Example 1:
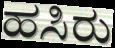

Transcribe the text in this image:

ಹಸಿರು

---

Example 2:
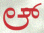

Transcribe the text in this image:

ಆ್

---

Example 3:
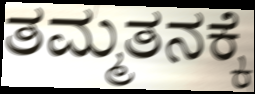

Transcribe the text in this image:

ತಮ್ಮತನಕ್ಕೆ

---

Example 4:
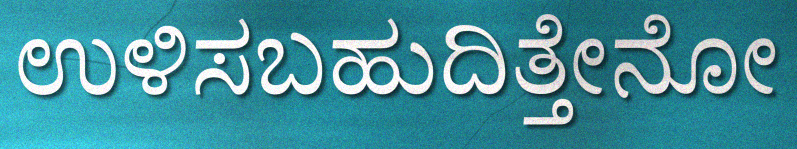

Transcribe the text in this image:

ಉಳಿಸಬಹುದಿತ್ತೇನೋ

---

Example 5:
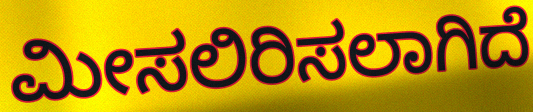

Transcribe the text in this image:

ಮೀಸಲಿರಿಸಲಾಗಿದೆ